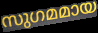
സുഗമമായ